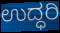
ಉದ್ಧರಿ